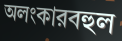
অলংকারবহুল